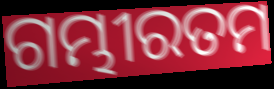
ଗମ୍ଭୀରତମ